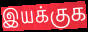
இயக்குக